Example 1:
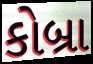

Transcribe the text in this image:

કોબ્રા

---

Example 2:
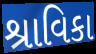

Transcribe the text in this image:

શ્રાવિકા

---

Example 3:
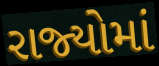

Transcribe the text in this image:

રાજ્‍યોમાં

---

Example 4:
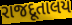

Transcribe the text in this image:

રાજદૂતાલય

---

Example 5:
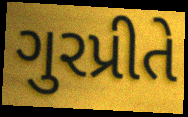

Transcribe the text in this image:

ગુરપ્રીતે